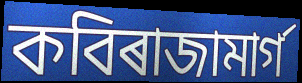
কবিৰাজামাৰ্গ